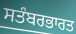
ਸਤੰਬਰਭਾਰਤ